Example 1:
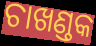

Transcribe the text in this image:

ଚାଖଣ୍ଡକ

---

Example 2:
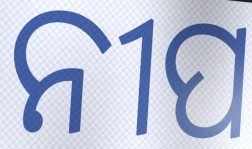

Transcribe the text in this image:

ନୀପ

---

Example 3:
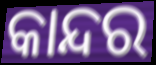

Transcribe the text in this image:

କାନ୍ଦର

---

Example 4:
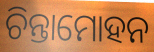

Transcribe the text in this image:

ଚିନ୍ତାମୋହନ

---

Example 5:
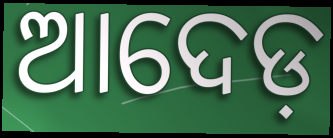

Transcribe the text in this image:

ଆଦେଡ଼